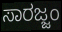
ಸಾರಜ್ಜಂ